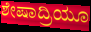
ಶೇಷಾದ್ರಿಯೂ